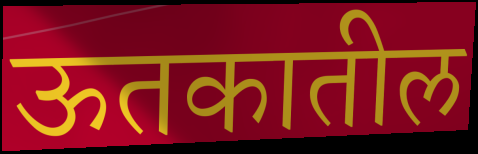
ऊतकातील